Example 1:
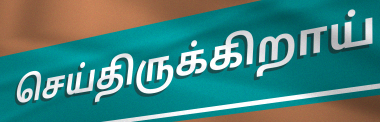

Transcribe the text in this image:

செய்திருக்கிறாய்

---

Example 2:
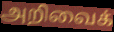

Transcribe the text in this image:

அறிவைக்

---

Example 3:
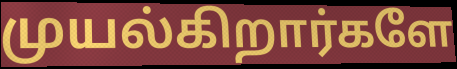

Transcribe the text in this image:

முயல்கிறார்களே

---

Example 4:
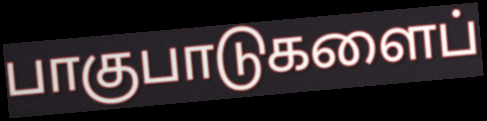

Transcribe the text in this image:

பாகுபாடுகளைப்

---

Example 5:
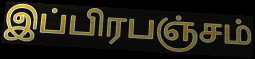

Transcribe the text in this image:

இப்பிரபஞ்சம்